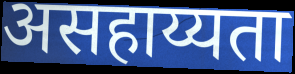
असहाय्यता